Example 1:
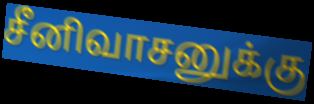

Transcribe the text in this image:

சீனிவாசனுக்கு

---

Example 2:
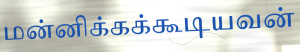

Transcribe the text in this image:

மன்னிக்கக்கூடியவன்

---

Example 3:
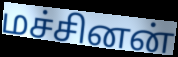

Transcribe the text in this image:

மச்சினன்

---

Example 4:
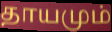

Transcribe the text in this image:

தாயமும்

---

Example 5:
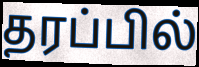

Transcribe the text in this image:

தரப்பில்